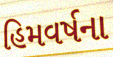
હિમવર્ષના